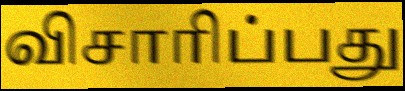
விசாரிப்பது